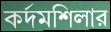
কর্দমশিলার